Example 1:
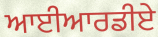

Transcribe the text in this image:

ਆਈਆਰਡੀਏ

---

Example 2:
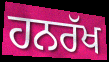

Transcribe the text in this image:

ਹਨਰੱਖ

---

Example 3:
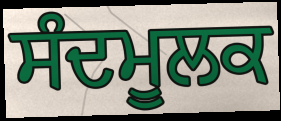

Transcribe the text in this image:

ਸੰਦਮੂਲਕ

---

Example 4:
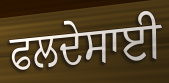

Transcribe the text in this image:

ਫਲਦੇਸਾਈ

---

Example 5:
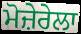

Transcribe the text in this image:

ਮੋਜ਼ੇਰੇਲਾ